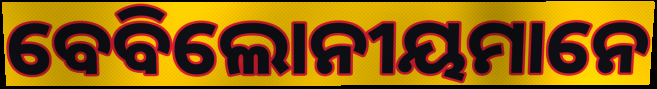
ବେବିଲୋନୀୟମାନେ